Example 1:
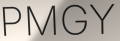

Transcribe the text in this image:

PMGY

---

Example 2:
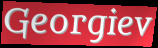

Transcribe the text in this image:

Georgiev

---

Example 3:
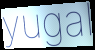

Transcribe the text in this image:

yugal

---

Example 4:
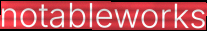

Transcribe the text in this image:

notableworks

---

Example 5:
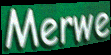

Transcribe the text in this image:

Merwe